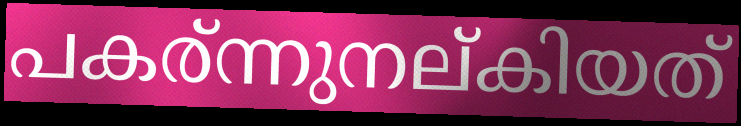
പകര്ന്നുനല്കിയത്